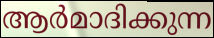
ആർമാദിക്കുന്ന